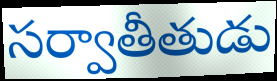
సర్వాతీతుడు